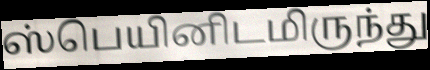
ஸ்பெயினிடமிருந்து